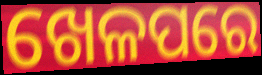
ଖେଳପରେ